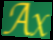
Ax